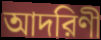
আদরিণী